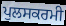
ਪੁਲਸਕਰਮੀ